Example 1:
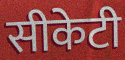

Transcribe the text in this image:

सीकेटी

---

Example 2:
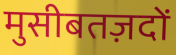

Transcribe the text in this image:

मुसीबतज़दों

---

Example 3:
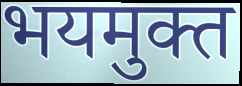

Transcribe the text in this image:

भयमुक्त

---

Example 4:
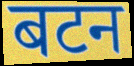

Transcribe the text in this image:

बटन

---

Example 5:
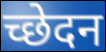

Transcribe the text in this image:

च्छेदन